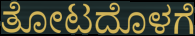
ತೋಟದೊಳಗೆ